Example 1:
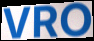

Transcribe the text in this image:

VRO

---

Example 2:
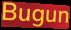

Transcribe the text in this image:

Bugun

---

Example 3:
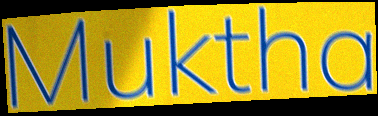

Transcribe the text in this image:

Muktha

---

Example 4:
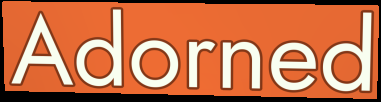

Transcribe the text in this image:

Adorned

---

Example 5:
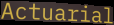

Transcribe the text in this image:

Actuarial